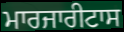
ਮਾਰਜਾਰੀਟਾਸ